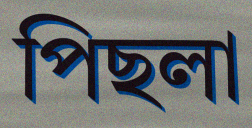
পিছলা